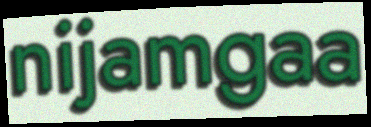
nijamgaa